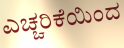
ಎಚ್ಚರಿಕೆಯಿಂದ